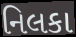
નિલકા